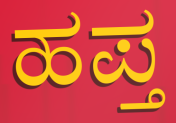
ಹಪ್ತ